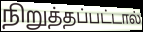
நிறுத்தப்பட்டால்